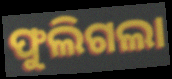
ଫୁଲିଗଲା